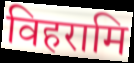
विहरामि